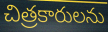
చిత్రకారులను